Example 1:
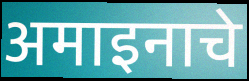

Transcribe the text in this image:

अमाइनाचे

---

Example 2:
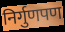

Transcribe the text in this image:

निर्गुणपण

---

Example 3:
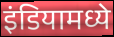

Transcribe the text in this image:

इंडियामध्ये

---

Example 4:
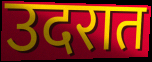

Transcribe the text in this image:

उदरात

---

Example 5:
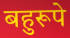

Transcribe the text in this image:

बहुरूपे